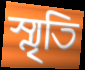
স্মৃতি